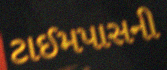
ટાઈમપાસની